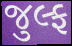
જુલ્ફ